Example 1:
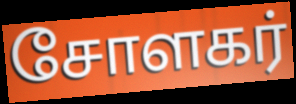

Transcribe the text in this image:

சோளகர்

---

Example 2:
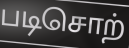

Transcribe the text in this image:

படிசொற்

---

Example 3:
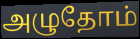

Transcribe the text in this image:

அழுதோம்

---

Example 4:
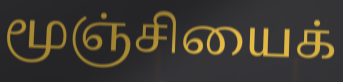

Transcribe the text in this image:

மூஞ்சியைக்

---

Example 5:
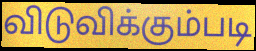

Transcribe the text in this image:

விடுவிக்கும்படி